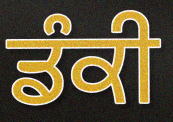
ਡੰਕੀ